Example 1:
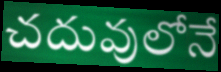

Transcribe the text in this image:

చదువులోనే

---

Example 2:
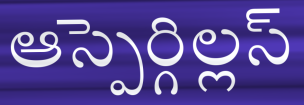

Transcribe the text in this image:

ఆస్పెర్గిల్లస్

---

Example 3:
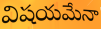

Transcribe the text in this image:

విషయమేనా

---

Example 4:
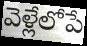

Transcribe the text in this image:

వెళ్లేలోపే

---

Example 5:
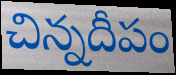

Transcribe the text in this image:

చిన్నదీపం